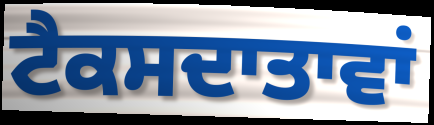
ਟੈਕਸਦਾਤਾਵਾਂ